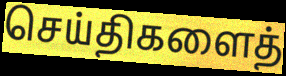
செய்திகளைத்